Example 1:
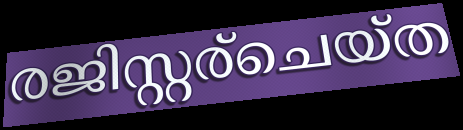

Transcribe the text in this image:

രജിസ്റ്റര്ചെയ്ത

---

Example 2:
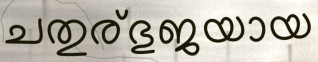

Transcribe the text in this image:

ചതുര്ഭുജയായ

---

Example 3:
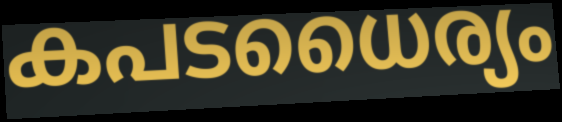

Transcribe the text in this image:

കപടധൈര്യം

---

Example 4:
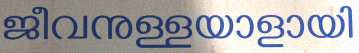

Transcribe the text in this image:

ജീവനുള്ളയാളായി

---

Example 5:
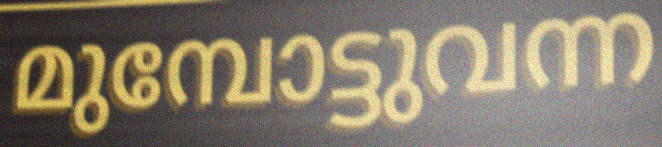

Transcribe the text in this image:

മുമ്പോട്ടുവന്ന